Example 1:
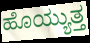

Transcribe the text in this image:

ಹೊಯ್ಯುತ್ತ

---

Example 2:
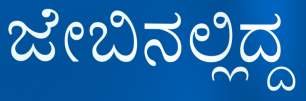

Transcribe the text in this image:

ಜೇಬಿನಲ್ಲಿದ್ದ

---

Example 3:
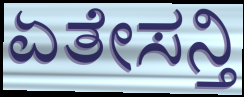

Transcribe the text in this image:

ಏತೇಸನ್ತಿ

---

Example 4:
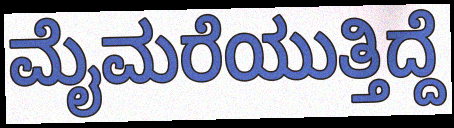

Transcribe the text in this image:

ಮೈಮರೆಯುತ್ತಿದ್ದೆ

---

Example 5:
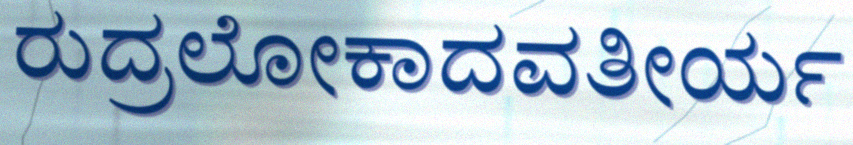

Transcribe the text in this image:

ರುದ್ರಲೋಕಾದವತೀರ್ಯ